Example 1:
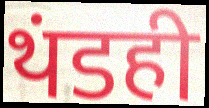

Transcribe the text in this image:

थंडही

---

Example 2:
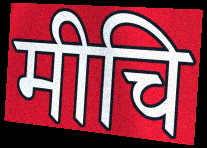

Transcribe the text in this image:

मीचि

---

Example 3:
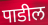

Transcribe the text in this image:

पाडील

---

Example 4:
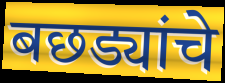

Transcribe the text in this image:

बछड्यांचे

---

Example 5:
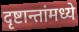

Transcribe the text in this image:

दृष्टान्तांमध्ये